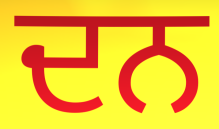
ਦਨ